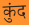
कुंद